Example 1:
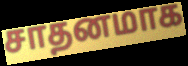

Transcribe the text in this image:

சாதனமாக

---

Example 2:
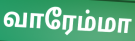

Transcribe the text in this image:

வாரேம்மா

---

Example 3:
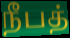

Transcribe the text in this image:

நீபத்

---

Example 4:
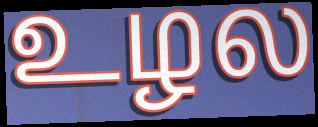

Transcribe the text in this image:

உழல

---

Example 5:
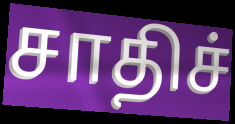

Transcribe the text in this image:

சாதிச்